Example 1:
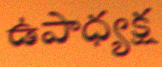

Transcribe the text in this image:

ఉపాధ్యక్ష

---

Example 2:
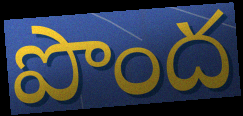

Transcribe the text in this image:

పొంద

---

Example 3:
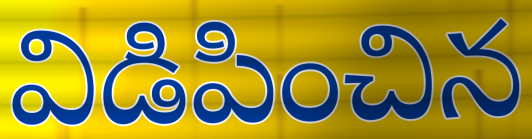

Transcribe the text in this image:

విడిపించిన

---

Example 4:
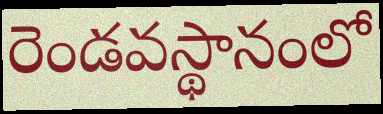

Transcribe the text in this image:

రెండవస్థానంలో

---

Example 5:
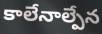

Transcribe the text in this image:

కాలేనాల్పేన